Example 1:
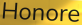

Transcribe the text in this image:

Honore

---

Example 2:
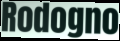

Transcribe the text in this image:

Rodogno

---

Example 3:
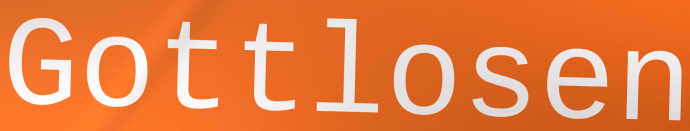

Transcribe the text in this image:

Gottlosen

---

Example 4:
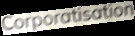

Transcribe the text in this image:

Corporatisation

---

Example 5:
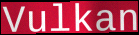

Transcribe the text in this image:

Vulkan